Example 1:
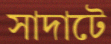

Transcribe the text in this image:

সাদাটে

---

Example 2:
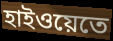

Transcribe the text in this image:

হাইওয়েতে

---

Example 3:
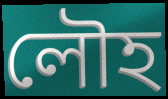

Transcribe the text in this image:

লৌহ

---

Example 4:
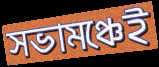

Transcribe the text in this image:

সভামঞ্চেই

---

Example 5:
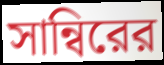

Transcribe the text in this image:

সান্বিরের